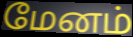
மேனம்